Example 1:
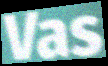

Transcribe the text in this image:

Vas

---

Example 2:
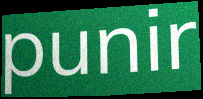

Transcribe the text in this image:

punir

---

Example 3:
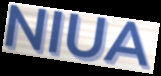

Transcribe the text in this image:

NIUA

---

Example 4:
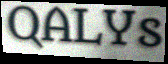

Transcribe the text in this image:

QALYs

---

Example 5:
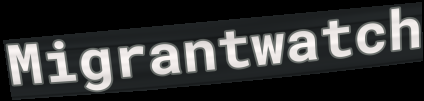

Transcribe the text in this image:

Migrantwatch